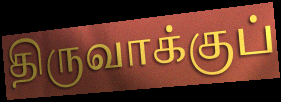
திருவாக்குப்